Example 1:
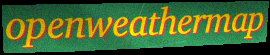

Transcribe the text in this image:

openweathermap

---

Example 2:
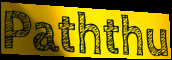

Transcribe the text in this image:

Paththu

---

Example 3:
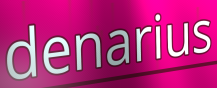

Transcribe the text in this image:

denarius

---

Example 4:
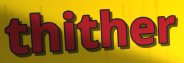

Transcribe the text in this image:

thither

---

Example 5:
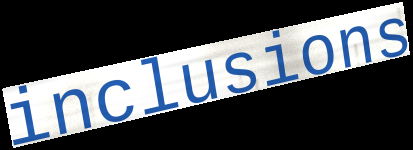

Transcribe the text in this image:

inclusions